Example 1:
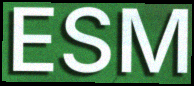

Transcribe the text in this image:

ESM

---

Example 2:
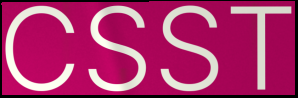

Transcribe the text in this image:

CSST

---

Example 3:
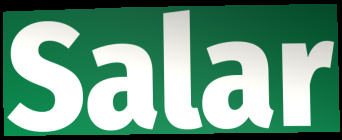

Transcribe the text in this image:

Salar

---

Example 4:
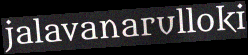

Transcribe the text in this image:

jalavanarulloki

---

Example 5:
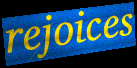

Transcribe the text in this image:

rejoices